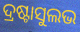
ଦ୍ରଷ୍ଟାସୁଲଭ